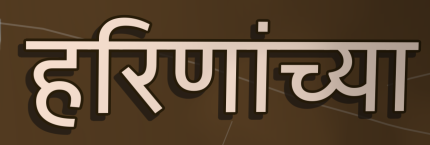
हरिणांच्या